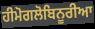
ਹੀਮੋਗਲੋਬਿਨੂਰੀਆ